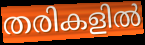
തരികളിൽ